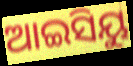
ଆଇସିୟୁ